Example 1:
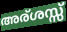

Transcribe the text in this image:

അര്ശസ്സ്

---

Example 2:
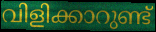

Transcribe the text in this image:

വിളിക്കാറുണ്ട്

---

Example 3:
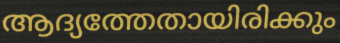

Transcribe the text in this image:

ആദ്യത്തേതായിരിക്കും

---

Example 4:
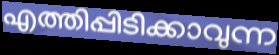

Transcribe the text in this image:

എത്തിപ്പിടിക്കാവുന്ന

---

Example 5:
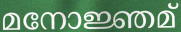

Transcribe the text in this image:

മനോജ്ഞമ്